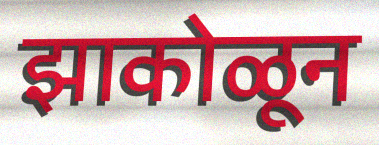
झाकोळून